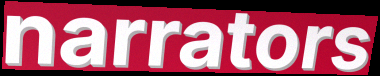
narrators